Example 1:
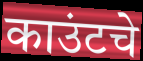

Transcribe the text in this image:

काउंटचे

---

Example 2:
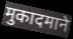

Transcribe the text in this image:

मुकादमाने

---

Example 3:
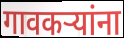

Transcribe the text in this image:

गावकऱ्यांना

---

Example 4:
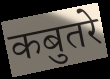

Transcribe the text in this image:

कबुतरे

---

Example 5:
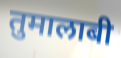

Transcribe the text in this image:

तुमालाबी